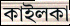
কাইলকা